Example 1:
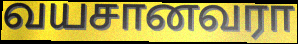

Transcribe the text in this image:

வயசானவரா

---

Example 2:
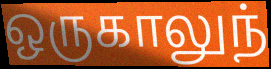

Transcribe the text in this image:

ஒருகாலுந்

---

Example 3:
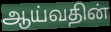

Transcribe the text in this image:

ஆய்வதின்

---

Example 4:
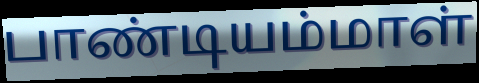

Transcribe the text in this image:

பாண்டியம்மாள்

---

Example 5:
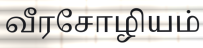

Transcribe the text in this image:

வீரசோழியம்